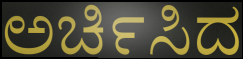
ಅರ್ಚಿಸಿದ